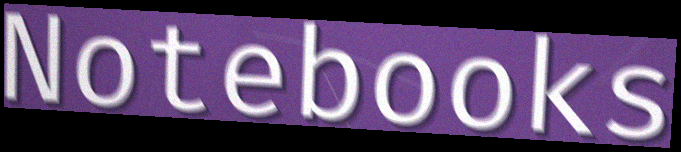
Notebooks